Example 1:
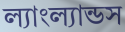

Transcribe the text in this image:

ল্যাংল্যান্ডস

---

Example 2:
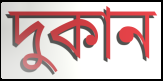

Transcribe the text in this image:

দুকান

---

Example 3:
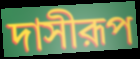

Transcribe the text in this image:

দাসীরূপ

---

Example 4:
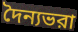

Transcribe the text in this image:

দৈন্যভরা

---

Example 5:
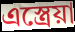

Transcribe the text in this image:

এস্ত্রেয়া